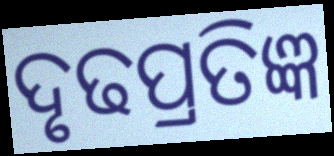
ଦୃଢପ୍ରତିଜ୍ଞ